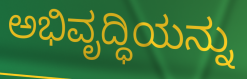
ಅಭಿವೃದ್ಧಿಯನ್ನು